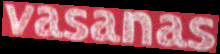
vasanas